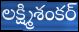
లక్ష్మిశంకర్